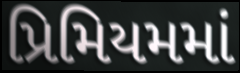
પ્રિમિયમમાં